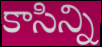
కాసిన్ని